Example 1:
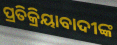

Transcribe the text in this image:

ପ୍ରତିକ୍ରିୟାବାଦୀଙ୍କ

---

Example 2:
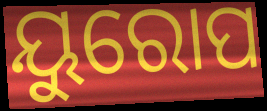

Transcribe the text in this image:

ୟୁରୋପ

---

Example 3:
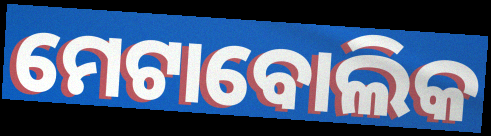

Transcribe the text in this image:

ମେଟାବୋଲିକ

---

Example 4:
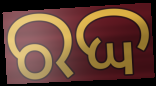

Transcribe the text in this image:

ରଦ୍ଦ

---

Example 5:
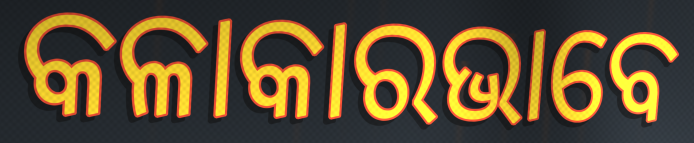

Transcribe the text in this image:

କଳାକାରଭାବେ